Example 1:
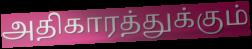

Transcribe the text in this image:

அதிகாரத்துக்கும்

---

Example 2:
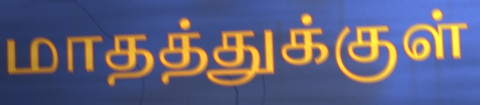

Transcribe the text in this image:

மாதத்துக்குள்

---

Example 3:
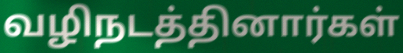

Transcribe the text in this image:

வழிநடத்தினார்கள்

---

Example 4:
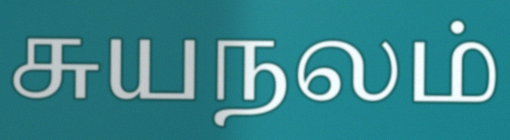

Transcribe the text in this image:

சுயநலம்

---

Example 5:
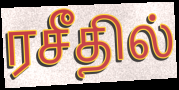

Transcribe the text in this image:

ரசீதில்